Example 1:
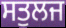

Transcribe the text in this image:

ਸਤੁਲਜ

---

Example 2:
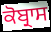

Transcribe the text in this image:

ਕੋਬ੍ਰਾਸ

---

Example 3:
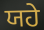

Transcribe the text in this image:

ਯਹੇ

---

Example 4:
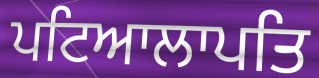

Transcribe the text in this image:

ਪਟਿਆਲਾਪਤਿ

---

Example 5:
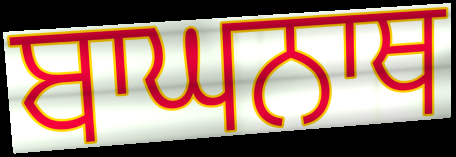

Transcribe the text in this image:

ਬਾਘਨਾਥ